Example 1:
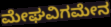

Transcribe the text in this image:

ಮೇಘವಿಗಮೇನ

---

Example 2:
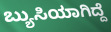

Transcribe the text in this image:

ಬ್ಯುಸಿಯಾಗಿದ್ದೆ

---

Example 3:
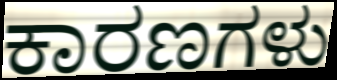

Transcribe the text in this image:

ಕಾರಣಗಳು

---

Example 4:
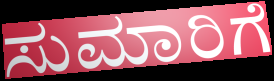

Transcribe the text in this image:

ಸುಮಾರಿಗೆ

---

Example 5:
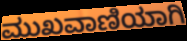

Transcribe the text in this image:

ಮುಖವಾಣಿಯಾಗಿ